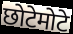
छोटेमोटे